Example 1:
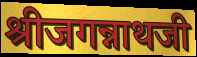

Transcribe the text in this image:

श्रीजगन्नाथजी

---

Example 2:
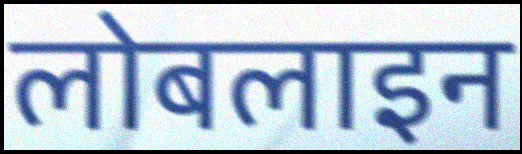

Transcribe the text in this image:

लोबलाइन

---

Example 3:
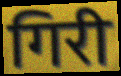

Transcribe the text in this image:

गिरी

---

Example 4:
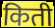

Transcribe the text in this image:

किती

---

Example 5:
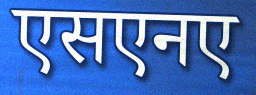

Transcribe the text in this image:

एसएनए